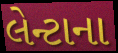
લેન્ટાના